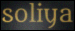
soliya